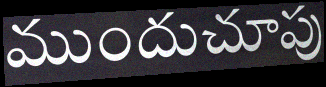
ముందుచూపు